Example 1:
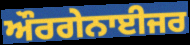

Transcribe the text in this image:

ਔਰਗੇਨਾਈਜਰ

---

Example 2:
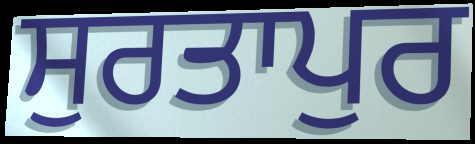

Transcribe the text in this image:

ਸੁਰਤਾਪੁਰ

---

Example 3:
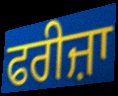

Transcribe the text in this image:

ਫਰੀਜ਼ਾ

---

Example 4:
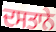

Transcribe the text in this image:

ਦਸਤਾਨੇ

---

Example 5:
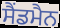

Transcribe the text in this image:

ਸੈਂਡਮੈਨ